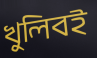
খুলিবই